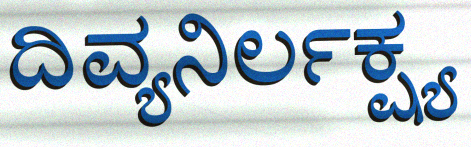
ದಿವ್ಯನಿರ್ಲಕ್ಷ್ಯ